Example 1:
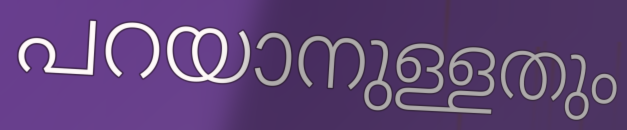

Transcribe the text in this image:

പറയാനുള്ളതും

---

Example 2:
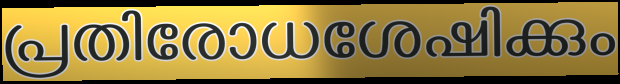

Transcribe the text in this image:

പ്രതിരോധശേഷിക്കും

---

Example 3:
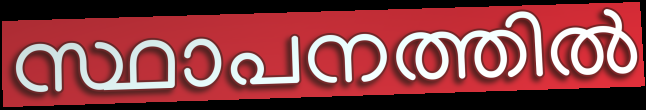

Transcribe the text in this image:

സ്ഥാപനത്തിൽ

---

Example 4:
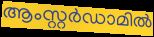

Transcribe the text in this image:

ആംസ്റ്റർഡാമിൽ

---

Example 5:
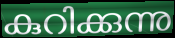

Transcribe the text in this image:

കുറിക്കുന്നു